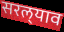
सरल्याव